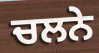
ਚਲਨੇ